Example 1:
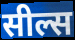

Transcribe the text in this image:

सील्स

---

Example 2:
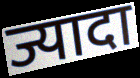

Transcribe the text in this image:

ज्यादा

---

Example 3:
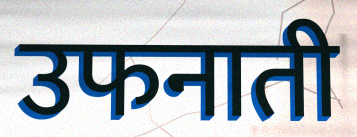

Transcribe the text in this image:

उफनाती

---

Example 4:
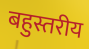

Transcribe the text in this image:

बहुस्तरीय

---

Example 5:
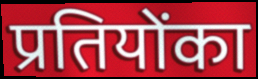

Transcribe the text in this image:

प्रतियोंका